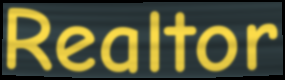
Realtor